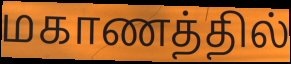
மகாணத்தில்